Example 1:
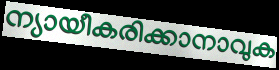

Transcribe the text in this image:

ന്യായീകരിക്കാനാവുക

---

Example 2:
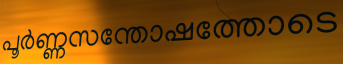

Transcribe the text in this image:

പൂർണ്ണസന്തോഷത്തോടെ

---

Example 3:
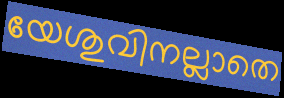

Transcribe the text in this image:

യേശുവിനല്ലാതെ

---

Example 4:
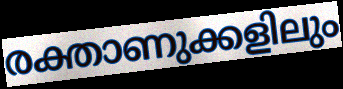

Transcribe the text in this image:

രക്താണുക്കളിലും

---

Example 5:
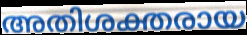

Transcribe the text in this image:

അതിശക്തരായ